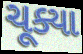
ચૂક્યા